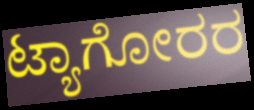
ಟ್ಯಾಗೋರರ